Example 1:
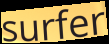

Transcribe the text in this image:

surfer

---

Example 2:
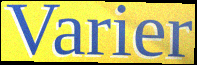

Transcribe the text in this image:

Varier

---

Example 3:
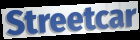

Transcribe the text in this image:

Streetcar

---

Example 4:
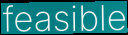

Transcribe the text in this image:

feasible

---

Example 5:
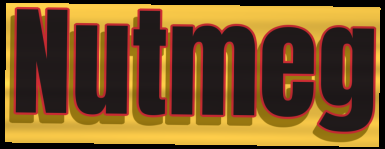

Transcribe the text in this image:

Nutmeg